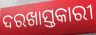
ଦରଖାସ୍ତକାରୀ